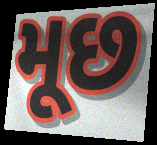
મૂછ